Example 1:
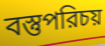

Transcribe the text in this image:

বস্তুপরিচয়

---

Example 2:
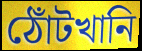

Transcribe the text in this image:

ঠোঁটখানি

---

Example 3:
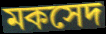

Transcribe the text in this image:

মকসেদ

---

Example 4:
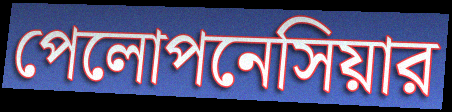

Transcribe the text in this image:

পেলোপনেসিয়ার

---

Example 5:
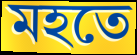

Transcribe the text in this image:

মহতে